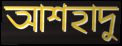
আশহাদু